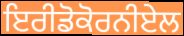
ਇਰੀਡੋਕੋਰਨੀਏਲ